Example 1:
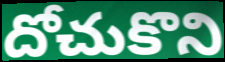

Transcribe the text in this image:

దోచుకొని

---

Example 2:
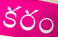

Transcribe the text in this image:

కరం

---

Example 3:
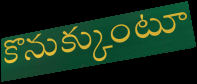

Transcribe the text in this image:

కొనుక్కుంటూ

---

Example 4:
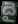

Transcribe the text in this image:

దై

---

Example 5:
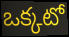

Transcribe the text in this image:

ఒక్కటో